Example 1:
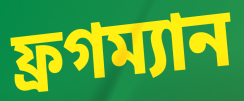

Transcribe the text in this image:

ফ্রগম্যান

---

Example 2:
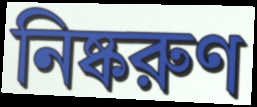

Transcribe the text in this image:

নিষ্করুণ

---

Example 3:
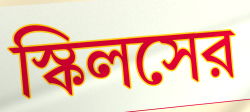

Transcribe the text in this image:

স্কিলসের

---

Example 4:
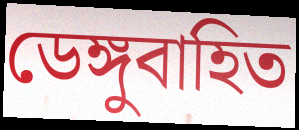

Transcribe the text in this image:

ডেঙ্গুবাহিত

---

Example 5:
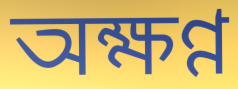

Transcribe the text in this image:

অক্ষণ্ন